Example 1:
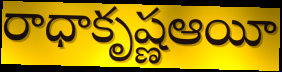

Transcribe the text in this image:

రాధాకృష్ణఆయీ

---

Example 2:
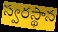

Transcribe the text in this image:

స్వరస్థాన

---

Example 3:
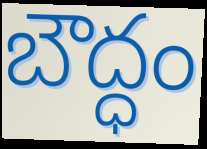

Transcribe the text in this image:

బౌద్ధం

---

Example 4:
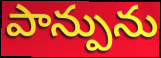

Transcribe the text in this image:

పాన్పును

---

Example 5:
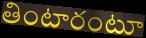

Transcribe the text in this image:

తింటారంటూ